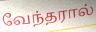
வேந்தரால்